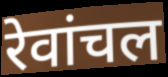
रेवांचल